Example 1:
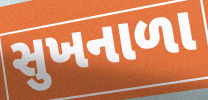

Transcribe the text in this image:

સુખનાળા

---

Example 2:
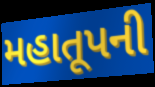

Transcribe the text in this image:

મહાતૂપની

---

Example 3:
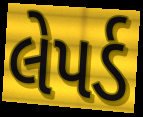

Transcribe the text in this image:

લેપર્ડ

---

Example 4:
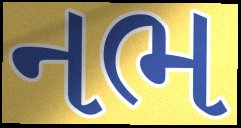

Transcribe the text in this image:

નભ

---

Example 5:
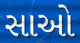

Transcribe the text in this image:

સાઓ